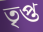
তৃপ্ত